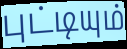
புட்டியும்